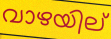
വാഴയില്